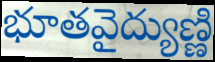
భూతవైద్యుణ్ణి